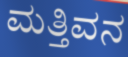
ಮತ್ತಿವನ